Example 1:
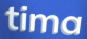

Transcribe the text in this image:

tima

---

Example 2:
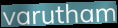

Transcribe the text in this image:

varutham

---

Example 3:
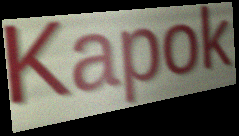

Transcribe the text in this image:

Kapok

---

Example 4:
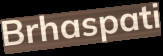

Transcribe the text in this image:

Brhaspati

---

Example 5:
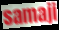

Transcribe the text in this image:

samaji